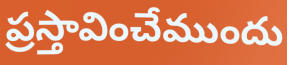
ప్రస్తావించేముందు